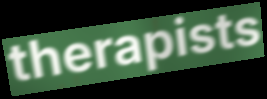
therapists